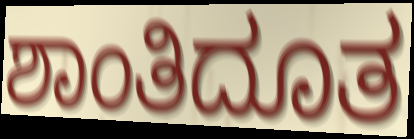
ಶಾಂತಿದೂತ